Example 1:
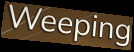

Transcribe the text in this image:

Weeping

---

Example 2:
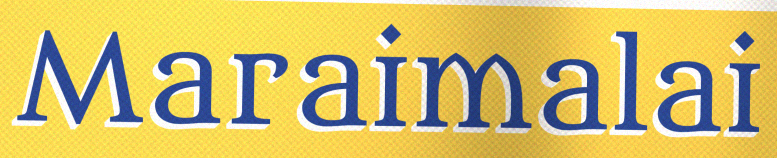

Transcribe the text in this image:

Maraimalai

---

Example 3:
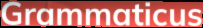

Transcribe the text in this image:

Grammaticus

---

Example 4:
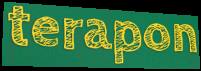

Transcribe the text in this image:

terapon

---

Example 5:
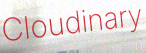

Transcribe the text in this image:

Cloudinary